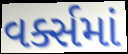
વર્ક્સમાં